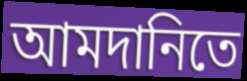
আমদানিতে